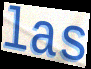
las